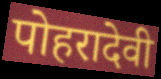
पोहरादेवी